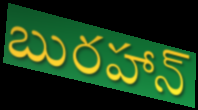
బురహాన్